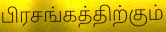
பிரசங்கத்திற்கும்